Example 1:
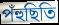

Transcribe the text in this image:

পঁহুছিতি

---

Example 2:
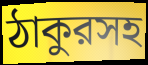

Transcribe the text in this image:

ঠাকুরসহ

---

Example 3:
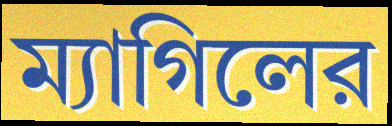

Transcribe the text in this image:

ম্যাগিলের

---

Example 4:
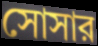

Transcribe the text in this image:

সোসার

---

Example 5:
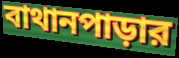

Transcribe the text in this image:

বাথানপাড়ার